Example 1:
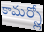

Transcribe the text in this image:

కామర్స్లో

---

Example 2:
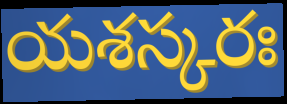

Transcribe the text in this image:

యశస్కరః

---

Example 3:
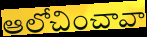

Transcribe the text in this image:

ఆలోచించావా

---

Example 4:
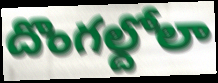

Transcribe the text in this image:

దొంగల్దోలా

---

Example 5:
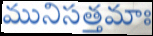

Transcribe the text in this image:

మునిసత్తమాః